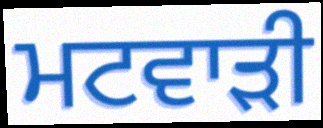
ਮਟਵਾੜੀ